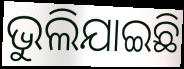
ଭୁଲିଯାଇଛି